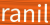
ranil